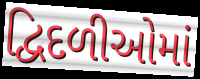
દ્વિદળીઓમાં